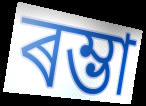
ৰম্ভা